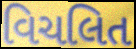
વિચલિત